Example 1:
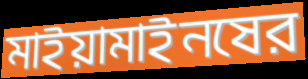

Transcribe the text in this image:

মাইয়ামাইনষের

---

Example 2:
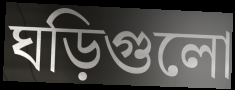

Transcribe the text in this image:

ঘড়িগুলো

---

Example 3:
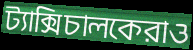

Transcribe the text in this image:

ট্যাক্সিচালকেরাও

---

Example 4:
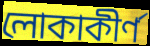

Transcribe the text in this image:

লোকাকীর্ণ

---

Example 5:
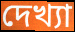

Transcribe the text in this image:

দেখ্যা